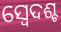
ସ୍ବେଦଶ୍ଚ